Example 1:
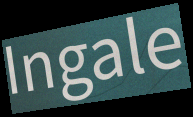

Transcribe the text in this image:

Ingale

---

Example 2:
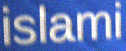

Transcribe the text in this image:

islami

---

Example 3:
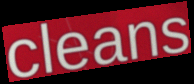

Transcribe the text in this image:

cleans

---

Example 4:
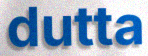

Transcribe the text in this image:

dutta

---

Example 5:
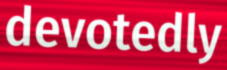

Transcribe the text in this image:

devotedly